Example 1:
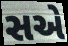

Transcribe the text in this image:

સએ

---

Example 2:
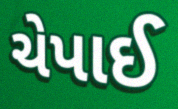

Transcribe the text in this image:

ચેપાઈ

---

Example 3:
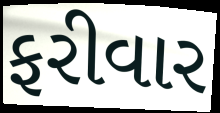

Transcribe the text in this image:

ફરીવાર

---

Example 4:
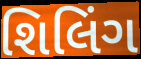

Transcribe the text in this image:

શિલિંગ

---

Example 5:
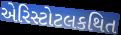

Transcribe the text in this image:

એરિસ્ટોટલકથિત